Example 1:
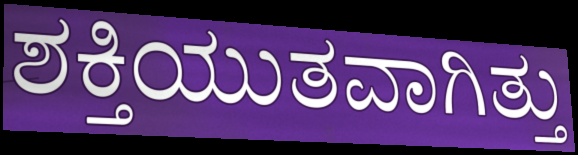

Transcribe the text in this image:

ಶಕ್ತಿಯುತವಾಗಿತ್ತು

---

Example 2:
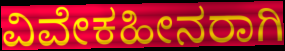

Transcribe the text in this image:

ವಿವೇಕಹೀನರಾಗಿ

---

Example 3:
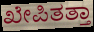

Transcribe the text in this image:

ಖೇಪಿತತ್ತಾ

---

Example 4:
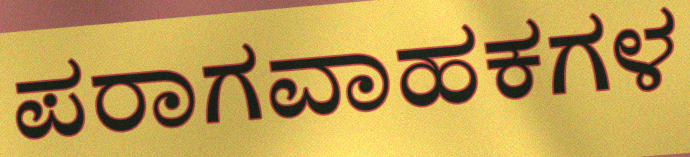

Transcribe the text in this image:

ಪರಾಗವಾಹಕಗಳ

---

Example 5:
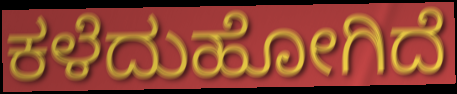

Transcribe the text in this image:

ಕಳೆದುಹೋಗಿದೆ